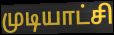
முடியாட்சி